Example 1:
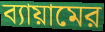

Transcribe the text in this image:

ব্যায়ামের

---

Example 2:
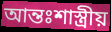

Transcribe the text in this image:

আন্তঃশাস্ত্রীয়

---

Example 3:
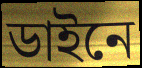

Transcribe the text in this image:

ডাইনে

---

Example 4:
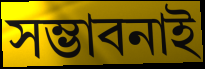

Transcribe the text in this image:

সম্ভাবনাই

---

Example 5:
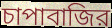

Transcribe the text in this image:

চাপাবাজির